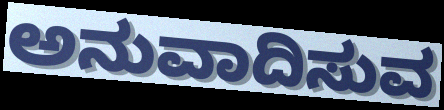
ಅನುವಾದಿಸುವ